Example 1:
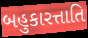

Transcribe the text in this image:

બહુકારત્તાતિ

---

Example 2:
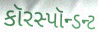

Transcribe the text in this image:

કૉરસ્પૉન્ડન્ટ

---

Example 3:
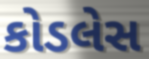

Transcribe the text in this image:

કોડલેસ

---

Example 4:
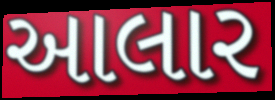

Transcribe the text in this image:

આલાર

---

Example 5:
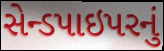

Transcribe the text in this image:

સેન્ડપાઇપરનું